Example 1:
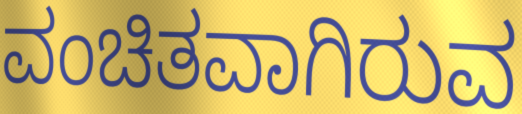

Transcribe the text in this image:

ವಂಚಿತವಾಗಿರುವ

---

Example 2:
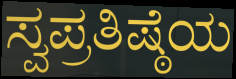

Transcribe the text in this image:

ಸ್ವಪ್ರತಿಷ್ಠೆಯ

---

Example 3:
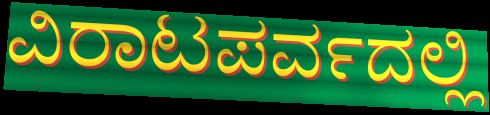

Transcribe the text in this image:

ವಿರಾಟಪರ್ವದಲ್ಲಿ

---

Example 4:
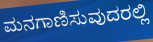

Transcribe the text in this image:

ಮನಗಾಣಿಸುವುದರಲ್ಲಿ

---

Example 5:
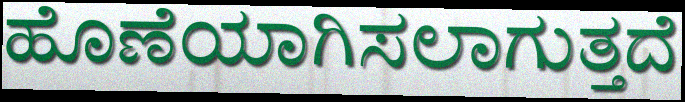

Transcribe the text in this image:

ಹೊಣೆಯಾಗಿಸಲಾಗುತ್ತದೆ